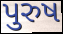
પુરુષ